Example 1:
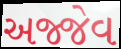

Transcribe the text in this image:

અજ્જેવ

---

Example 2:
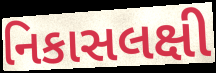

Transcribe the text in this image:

નિકાસલક્ષી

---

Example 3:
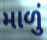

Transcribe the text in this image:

માળું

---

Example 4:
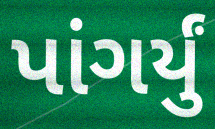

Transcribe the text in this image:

પાંગર્યું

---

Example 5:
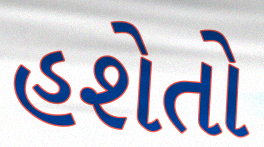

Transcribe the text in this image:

હશેતો